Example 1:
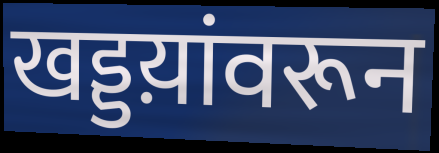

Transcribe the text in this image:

खड्डय़ांवरून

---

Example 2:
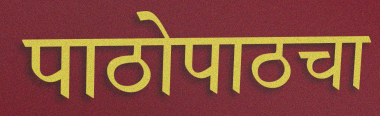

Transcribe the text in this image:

पाठोपाठचा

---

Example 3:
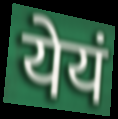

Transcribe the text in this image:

येयं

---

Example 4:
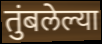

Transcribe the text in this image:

तुंबलेल्या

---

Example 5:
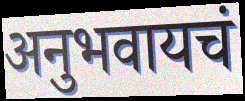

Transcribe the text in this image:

अनुभवायचं